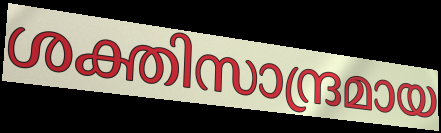
ശക്തിസാന്ദ്രമായ